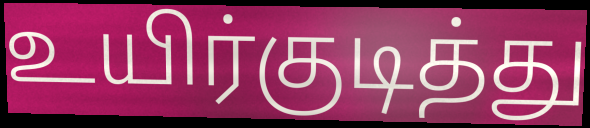
உயிர்குடித்து